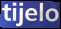
tijelo